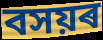
বসয়ৰ